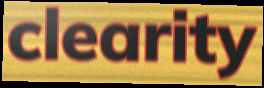
clearity